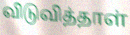
விடுவித்தாள்